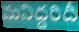
మనిద్దరిదీ